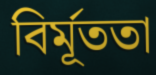
বির্মূততা